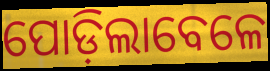
ପୋଡ଼ିଲାବେଳେ